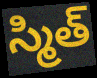
స్మిత్